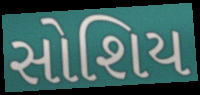
સોશિય